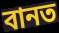
বানত